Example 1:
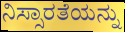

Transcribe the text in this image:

ನಿಸ್ಸಾರತೆಯನ್ನು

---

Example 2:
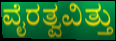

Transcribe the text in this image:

ವೈರತ್ವವಿತ್ತು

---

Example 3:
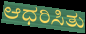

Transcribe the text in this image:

ಆಧರಿಸಿತು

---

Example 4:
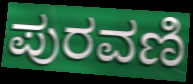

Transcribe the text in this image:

ಪುರವಣಿ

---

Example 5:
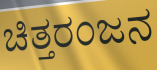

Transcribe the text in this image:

ಚಿತ್ತರಂಜನ